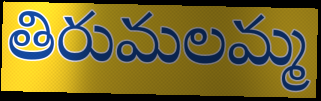
తిరుమలమ్మ